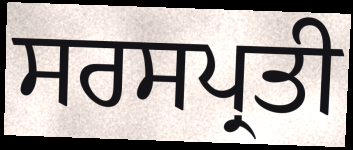
ਸਰਸਪ੍ਰਤੀ